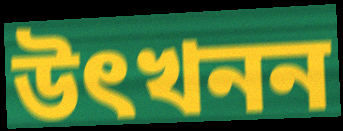
উৎখনন